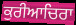
ਕੁਰੀਆਚਿਰਾ